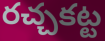
రచ్చకట్ట